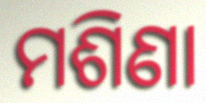
ମଶିଣା